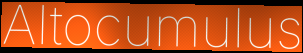
Altocumulus